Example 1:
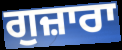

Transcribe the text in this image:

ਗੁਜ਼ਾਰਾ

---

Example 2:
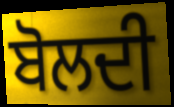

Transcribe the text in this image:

ਬੋਲਦੀ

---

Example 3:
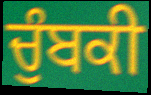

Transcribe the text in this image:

ਚੁੰਬਕੀ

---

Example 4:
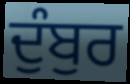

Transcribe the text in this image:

ਦੁੰਬੁਰ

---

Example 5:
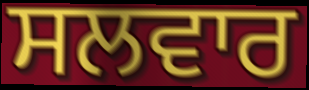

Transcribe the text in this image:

ਸਲਵਾਰ